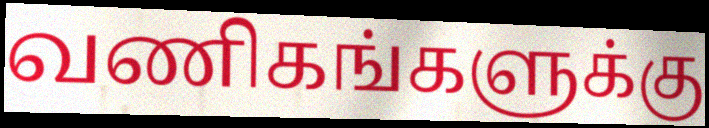
வணிகங்களுக்கு